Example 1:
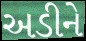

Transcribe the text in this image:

અડીને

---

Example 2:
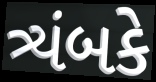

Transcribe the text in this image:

ત્ર્યંબકે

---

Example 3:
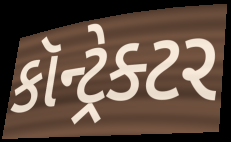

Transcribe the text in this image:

કૉન્ટ્રેક્ટર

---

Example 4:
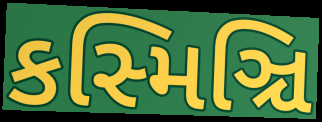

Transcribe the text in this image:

કસ્મિઞ્ચિ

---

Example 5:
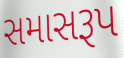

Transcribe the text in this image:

સમાસરૂપ